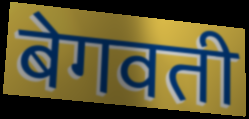
बेगवती